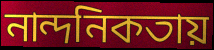
নান্দনিকতায়